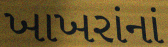
ખાખરાંનાં